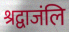
श्रद्वाजंलि